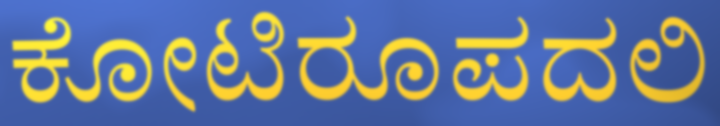
ಕೋಟಿರೂಪದಲಿ